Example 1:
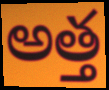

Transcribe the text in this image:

అత్త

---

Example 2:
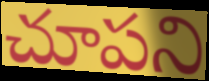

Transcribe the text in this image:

చూపని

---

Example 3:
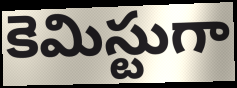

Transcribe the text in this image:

కెమిస్టుగా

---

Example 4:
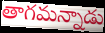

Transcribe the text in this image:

తాగమన్నాడు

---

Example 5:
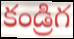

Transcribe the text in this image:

కండ్రిగ